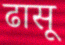
ढासू